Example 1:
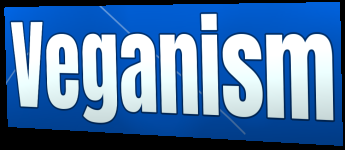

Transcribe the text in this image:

Veganism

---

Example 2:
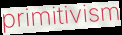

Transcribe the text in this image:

primitivism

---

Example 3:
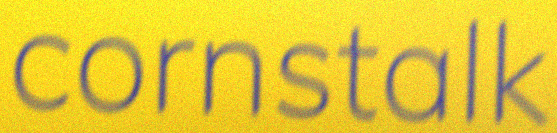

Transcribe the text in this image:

cornstalk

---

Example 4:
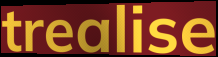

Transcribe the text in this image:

trealise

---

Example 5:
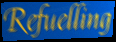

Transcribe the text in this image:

Refuelling